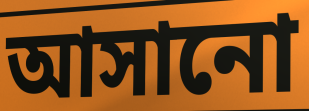
আসানো